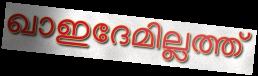
ഖാഇദേമില്ലത്ത്